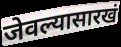
जेवल्यासारखं